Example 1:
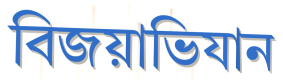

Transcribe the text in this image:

বিজয়াভিযান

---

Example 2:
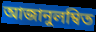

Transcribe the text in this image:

আজানুলম্বিত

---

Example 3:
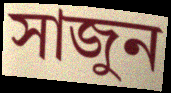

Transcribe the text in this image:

সাজুন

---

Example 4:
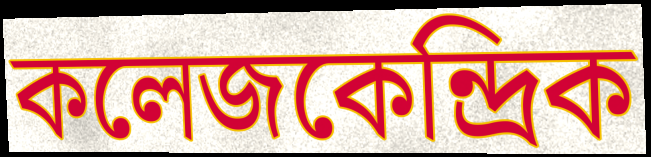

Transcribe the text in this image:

কলেজকেন্দ্রিক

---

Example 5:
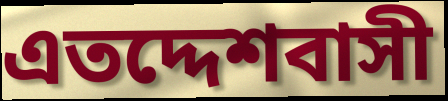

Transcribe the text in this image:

এতদ্দেশবাসী